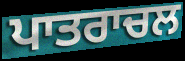
ਪਾਤਰਾਚਲ